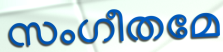
സംഗീതമേ